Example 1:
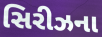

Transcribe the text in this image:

સિરીઝના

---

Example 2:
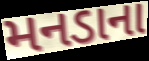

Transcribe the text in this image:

મનડાના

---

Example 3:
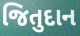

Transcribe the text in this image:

જિતુદાન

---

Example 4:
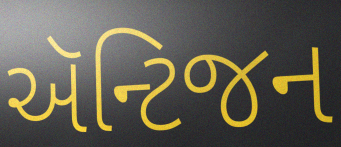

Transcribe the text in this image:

ઍન્ટિજન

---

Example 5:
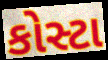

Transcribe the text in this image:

કોસ્ટા